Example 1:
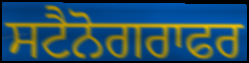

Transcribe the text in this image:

ਸਟੈਨੋਗਰਾਫਰ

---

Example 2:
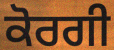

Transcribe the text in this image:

ਕੋਰਗੀ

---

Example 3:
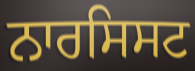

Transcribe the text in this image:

ਨਾਰਸਿਸਟ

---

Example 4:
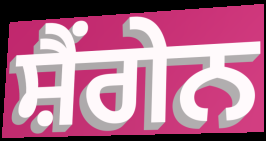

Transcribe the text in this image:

ਸ਼ੈਂਗੇਨ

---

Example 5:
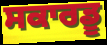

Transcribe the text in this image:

ਸਕਾਰਡੂ